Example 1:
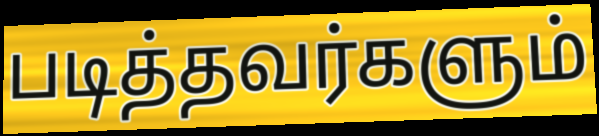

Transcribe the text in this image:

படித்தவர்களும்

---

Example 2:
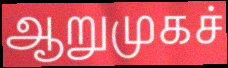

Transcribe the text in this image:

ஆறுமுகச்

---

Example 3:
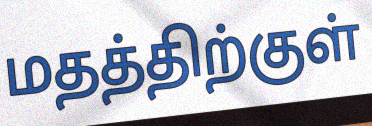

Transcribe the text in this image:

மதத்திற்குள்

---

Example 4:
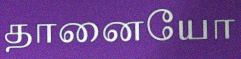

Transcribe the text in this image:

தானையோ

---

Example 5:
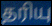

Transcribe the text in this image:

தரியு